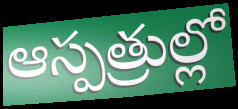
ఆస్పత్రుల్లో